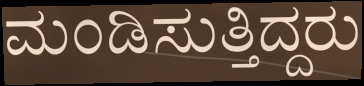
ಮಂಡಿಸುತ್ತಿದ್ದರು